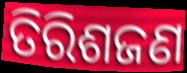
ତିରିଶଜଣ